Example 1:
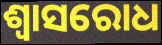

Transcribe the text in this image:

ଶ୍ୱାସରୋଧ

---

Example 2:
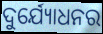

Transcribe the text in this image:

ଦୁର୍ଯ୍ଯୋଧନର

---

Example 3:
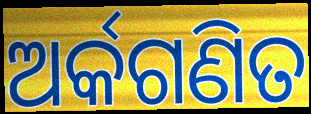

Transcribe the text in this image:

ଅର୍କଗଣିତ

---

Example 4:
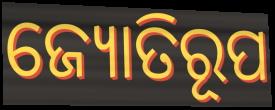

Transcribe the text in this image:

ଜ୍ୟୋତିରୂପ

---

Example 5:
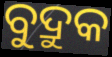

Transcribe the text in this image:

ବୁଦ୍ରୁକ